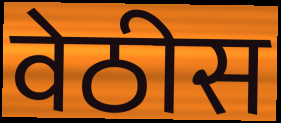
वेठीस